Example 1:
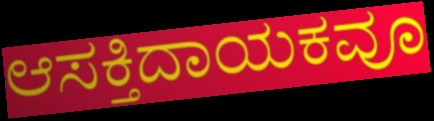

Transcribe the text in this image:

ಆಸಕ್ತಿದಾಯಕವೂ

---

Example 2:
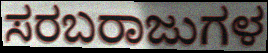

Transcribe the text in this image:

ಸರಬರಾಜುಗಳ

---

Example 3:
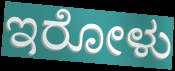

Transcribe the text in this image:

ಇರೋಳು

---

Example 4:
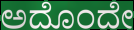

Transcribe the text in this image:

ಅದೊಂದೇ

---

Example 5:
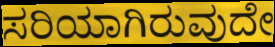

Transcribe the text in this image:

ಸರಿಯಾಗಿರುವುದೇ